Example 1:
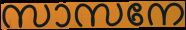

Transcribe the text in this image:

സാസനേ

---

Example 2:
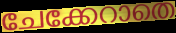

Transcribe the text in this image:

ചേക്കേറാതെ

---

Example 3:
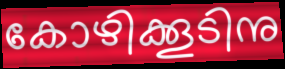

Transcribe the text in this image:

കോഴിക്കൂടിനു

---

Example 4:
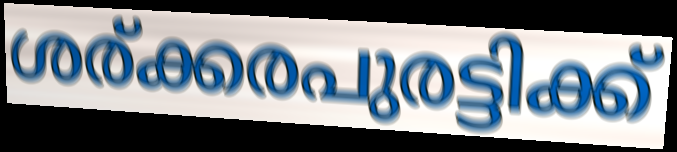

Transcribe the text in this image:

ശര്ക്കരപുരട്ടിക്ക്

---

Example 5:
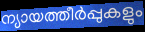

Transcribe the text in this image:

ന്യായത്തീർപ്പുകളും